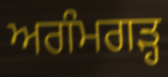
ਅਗੰਮਗੜ੍ਹ